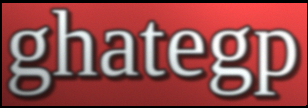
ghategp